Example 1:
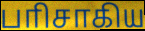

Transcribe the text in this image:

பரிசாகிய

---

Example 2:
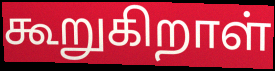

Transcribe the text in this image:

கூறுகிறாள்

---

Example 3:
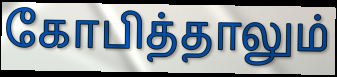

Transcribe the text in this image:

கோபித்தாலும்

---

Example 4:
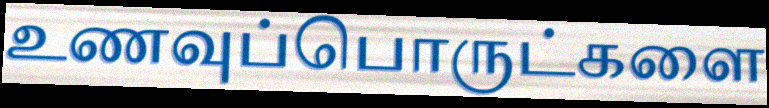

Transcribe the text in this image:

உணவுப்பொருட்களை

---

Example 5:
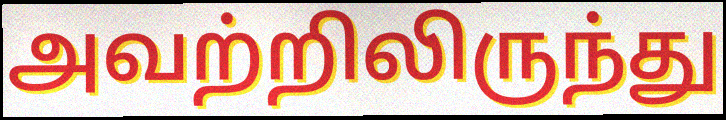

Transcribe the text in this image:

அவற்றிலிருந்து